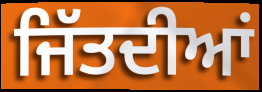
ਜਿੱਤਦੀਆਂ